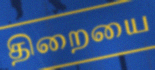
திறையை